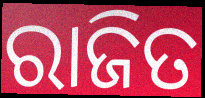
ରାଜିତ